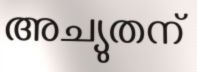
അച്യുതന്